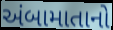
અંબામાતાનો